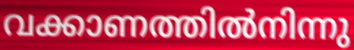
വക്കാണത്തിൽനിന്നു